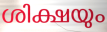
ശിക്ഷയും